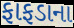
ફાફડાના